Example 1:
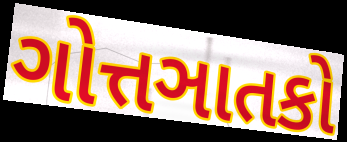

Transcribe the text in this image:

ગોત્તઞાતકો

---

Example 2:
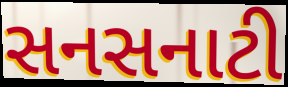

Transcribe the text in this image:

સનસનાટી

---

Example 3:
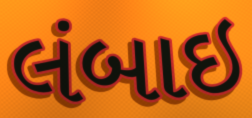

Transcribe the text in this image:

લંબાઇ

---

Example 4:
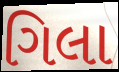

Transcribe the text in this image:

ગિલા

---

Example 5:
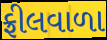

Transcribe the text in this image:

ફ્રીલવાળા